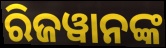
ରିଜୱାନଙ୍କ